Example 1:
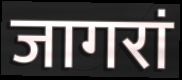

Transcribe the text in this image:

जागरां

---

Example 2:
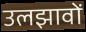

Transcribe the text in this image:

उलझावों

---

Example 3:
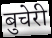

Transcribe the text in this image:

बुचेरी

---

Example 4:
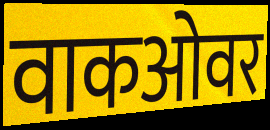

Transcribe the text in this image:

वाकओवर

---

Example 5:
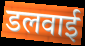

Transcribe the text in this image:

डलवाई